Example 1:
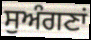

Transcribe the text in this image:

ਸੁਅੰਗਣਾਂ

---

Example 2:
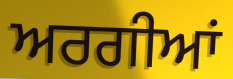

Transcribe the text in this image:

ਅਰਗੀਆਂ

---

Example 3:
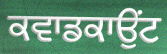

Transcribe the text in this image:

ਕਵਾਡਕਾਉਂਟ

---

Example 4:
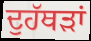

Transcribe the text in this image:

ਦੁਹੱਥੜਾਂ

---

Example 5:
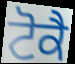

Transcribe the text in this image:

ਟੋਕੈ